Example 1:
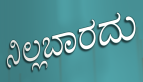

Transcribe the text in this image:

ನಿಲ್ಲಬಾರದು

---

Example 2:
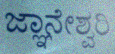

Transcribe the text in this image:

ಜ್ಞಾನೇಶ್ವರಿ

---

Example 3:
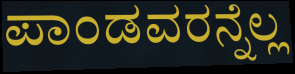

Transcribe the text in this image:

ಪಾಂಡವರನ್ನೆಲ್ಲ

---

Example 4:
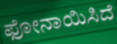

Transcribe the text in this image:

ಫೋನಾಯಿಸಿದೆ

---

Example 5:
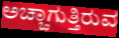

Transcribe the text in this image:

ಅಚ್ಚಾಗುತ್ತಿರುವ